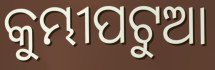
କୁମ୍ଭୀପଟୁଆ